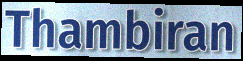
Thambiran